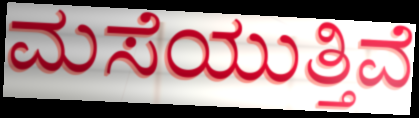
ಮಸೆಯುತ್ತಿವೆ